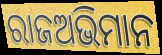
ରାଜଅଭିମାନ